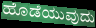
ಹೊಡೆಯುವುದು